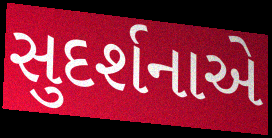
સુદર્શનાએ